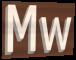
Mw